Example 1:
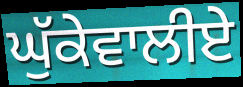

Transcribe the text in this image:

ਘੁੱਕੇਵਾਲੀਏ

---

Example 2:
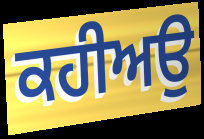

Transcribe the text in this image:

ਕਹੀਅਉ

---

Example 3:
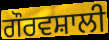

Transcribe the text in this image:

ਗੌਰਵਸ਼ਾਲੀ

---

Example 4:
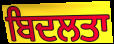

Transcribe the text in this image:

ਬਿਦਲਤਾ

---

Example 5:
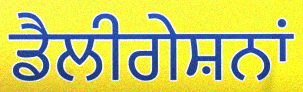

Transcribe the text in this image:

ਡੈਲੀਗੇਸ਼ਨਾਂ